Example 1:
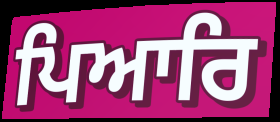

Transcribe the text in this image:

ਪਿਆਰਿ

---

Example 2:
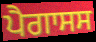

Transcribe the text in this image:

ਪੈਗਾਸਸ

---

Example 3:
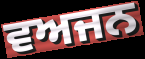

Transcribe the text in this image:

ਵਅਜਨ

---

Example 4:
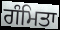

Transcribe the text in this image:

ਗੰਮਿਤਾ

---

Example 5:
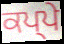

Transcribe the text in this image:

ਕਪ੍ਪੇ